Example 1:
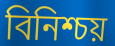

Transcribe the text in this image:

বিনিশ্চয়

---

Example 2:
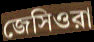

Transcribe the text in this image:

জেসিওরা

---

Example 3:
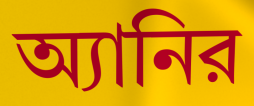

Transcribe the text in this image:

অ্যানির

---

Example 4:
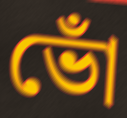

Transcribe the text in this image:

ভোঁ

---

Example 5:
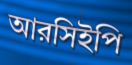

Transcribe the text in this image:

আরসিইপি